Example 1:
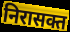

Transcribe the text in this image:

निरासक्त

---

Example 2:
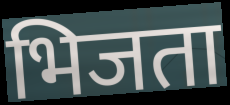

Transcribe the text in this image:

भिजता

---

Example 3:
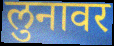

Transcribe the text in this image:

लुनावर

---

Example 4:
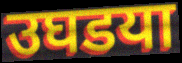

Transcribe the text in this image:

उघडया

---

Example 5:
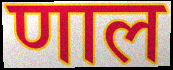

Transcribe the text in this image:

णाल